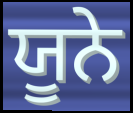
ਯੂਨੇ